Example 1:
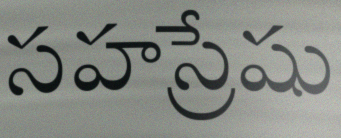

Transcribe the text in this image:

సహస్రేషు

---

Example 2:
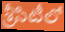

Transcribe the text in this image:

శ్రీసిటీలో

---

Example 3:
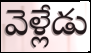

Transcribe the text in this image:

వెళ్లేడు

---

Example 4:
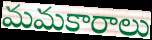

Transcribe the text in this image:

మమకారాలు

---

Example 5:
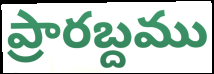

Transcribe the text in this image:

ప్రారబ్దము